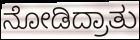
ನೋಡಿದ್ರಾತು